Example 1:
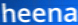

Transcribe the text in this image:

heena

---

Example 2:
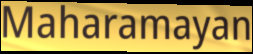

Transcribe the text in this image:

Maharamayan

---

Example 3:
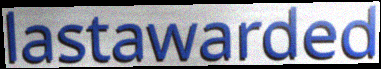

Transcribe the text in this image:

lastawarded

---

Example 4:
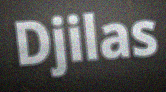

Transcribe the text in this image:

Djilas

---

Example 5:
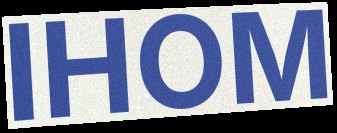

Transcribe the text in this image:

IHOM